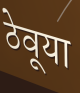
ठेवूया